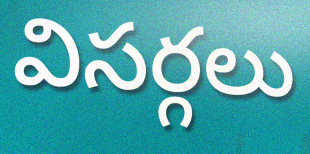
విసర్గలు